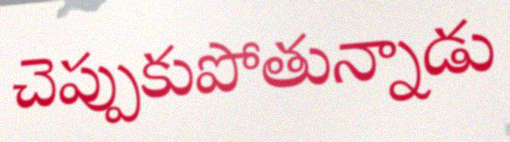
చెప్పుకుపోతున్నాడు